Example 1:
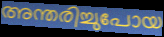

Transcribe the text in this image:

അന്തരിച്ചുപോയ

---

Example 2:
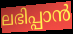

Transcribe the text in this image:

ലഭിപ്പാൻ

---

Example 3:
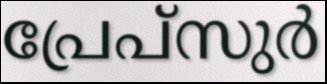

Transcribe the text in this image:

പ്രേപ്സുർ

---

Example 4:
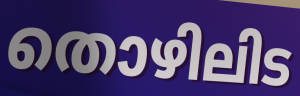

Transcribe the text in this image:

തൊഴിലിട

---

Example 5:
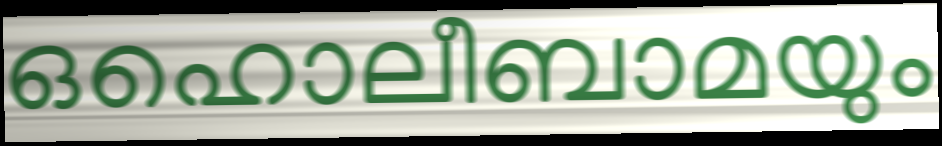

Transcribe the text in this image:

ഒഹൊലീബാമയും